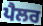
ਪੈਲਰ